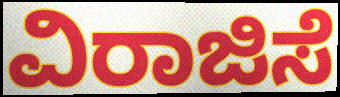
ವಿರಾಜಿಸೆ